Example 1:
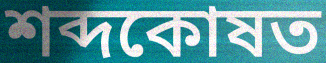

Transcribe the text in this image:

শব্দকোষত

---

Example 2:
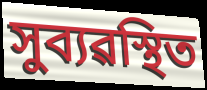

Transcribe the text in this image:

সুব্যৱস্থিত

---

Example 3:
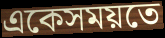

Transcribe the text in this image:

একেসময়তে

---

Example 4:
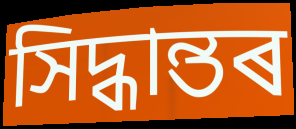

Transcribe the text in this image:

সিদ্ধান্তৰ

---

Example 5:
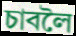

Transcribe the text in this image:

চাবলৈ